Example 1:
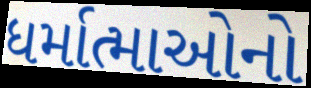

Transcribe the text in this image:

ધર્માત્માઓનો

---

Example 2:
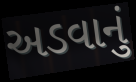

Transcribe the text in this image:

અડવાનું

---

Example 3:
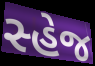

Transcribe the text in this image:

સ્હેજ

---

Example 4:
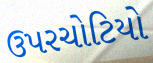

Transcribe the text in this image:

ઉપરચોટિયો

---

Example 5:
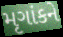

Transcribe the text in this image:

મૃગાંકને